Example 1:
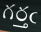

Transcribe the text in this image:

గర్తఁ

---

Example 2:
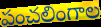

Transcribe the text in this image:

పంచలింగాల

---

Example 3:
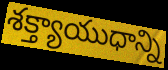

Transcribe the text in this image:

శక్త్యాయుధాన్ని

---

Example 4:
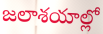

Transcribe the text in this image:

జలాశయాల్లో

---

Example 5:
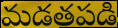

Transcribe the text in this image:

మడతపడి